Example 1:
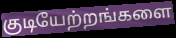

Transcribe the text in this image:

குடியேற்றங்களை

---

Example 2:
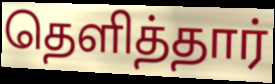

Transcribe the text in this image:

தெளித்தார்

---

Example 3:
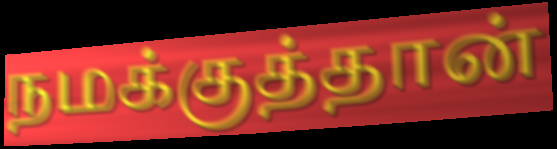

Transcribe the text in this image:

நமக்குத்தான்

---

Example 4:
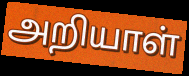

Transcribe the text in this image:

அறியாள்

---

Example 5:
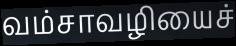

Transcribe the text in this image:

வம்சாவழியைச்